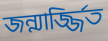
জন্মার্জ্জিত